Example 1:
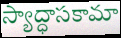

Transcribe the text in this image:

స్యాద్ధాసకామా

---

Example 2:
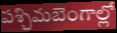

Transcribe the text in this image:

పశ్చిమబెంగాల్లో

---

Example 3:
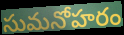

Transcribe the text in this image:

సుమనోహరం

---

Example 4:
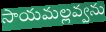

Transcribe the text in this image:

సాయమల్లవ్వను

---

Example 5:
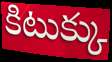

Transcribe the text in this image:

కిటుక్కు